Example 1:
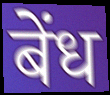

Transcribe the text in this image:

बेंध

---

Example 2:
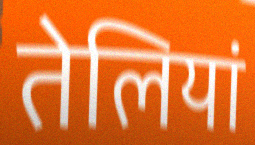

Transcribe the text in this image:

तेलियां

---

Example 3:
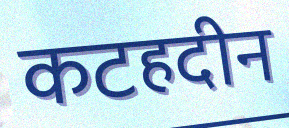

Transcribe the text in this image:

कटहदीन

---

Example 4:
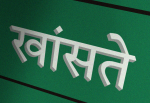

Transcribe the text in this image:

खांसते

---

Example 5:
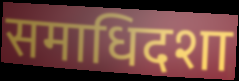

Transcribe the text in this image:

समाधिदशा